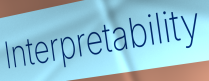
Interpretability